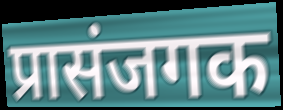
प्रासंजगक